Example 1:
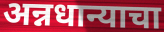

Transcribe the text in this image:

अन्नधान्याचा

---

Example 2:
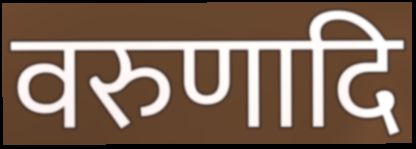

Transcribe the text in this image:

वरुणादि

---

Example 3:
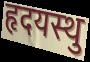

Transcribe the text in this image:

हृदयस्थु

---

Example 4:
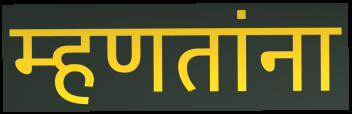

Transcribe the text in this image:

म्हणतांना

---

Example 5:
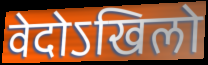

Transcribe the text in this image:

वेदोऽखिलो